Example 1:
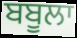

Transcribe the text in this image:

ਬਬੂਲਾ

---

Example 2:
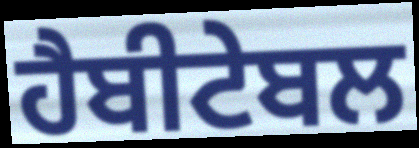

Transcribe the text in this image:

ਹੈਬੀਟੇਬਲ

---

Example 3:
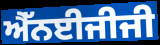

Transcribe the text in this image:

ਐੱਨਈਜੀਜੀ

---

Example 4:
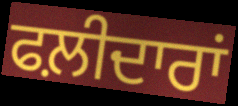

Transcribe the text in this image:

ਫਲ਼ੀਦਾਰਾਂ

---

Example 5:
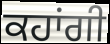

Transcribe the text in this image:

ਕਹਾਂਗੀ